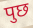
पुछ